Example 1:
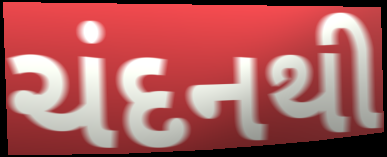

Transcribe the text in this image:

ચંદનથી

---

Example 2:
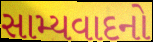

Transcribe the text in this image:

સામ્યવાદનો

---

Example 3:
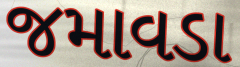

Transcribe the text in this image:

જમાવડા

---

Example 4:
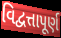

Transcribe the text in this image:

વિદ્વત્તાપૂર્ણ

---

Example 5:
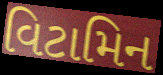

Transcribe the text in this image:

વિટામિન